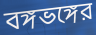
বঙ্গভঙ্গের